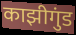
काझीगुंड